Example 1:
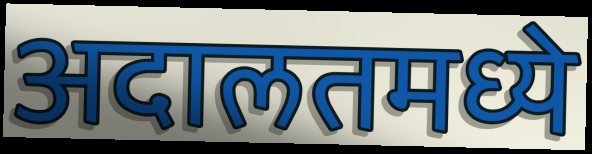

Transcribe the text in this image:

अदालतमध्ये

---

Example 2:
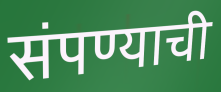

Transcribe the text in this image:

संपण्याची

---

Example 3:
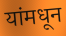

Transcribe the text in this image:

यांमधून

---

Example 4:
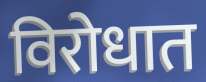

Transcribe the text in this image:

विरोधात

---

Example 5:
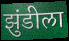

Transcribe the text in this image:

झुंडीला